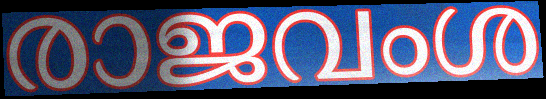
രാജവംശ